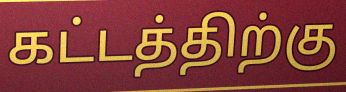
கட்டத்திற்கு